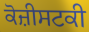
ਕੋਜ਼ੀਸਟਕੀ